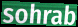
sohrab